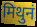
मिथुनं